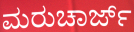
ಮರುಚಾರ್ಜ್